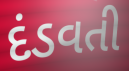
દંડવતી